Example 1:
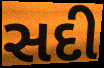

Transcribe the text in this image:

સદી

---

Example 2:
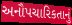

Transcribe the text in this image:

અનૌપચારિકતાનું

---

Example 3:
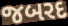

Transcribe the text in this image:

જબરદ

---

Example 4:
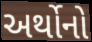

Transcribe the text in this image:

અર્થોનો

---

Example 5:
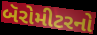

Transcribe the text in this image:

બૅરોમીટરનો